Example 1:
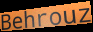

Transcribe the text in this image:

Behrouz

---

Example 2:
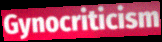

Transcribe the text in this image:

Gynocriticism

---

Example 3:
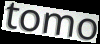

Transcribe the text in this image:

tomo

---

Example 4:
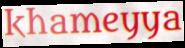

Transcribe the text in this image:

khameyya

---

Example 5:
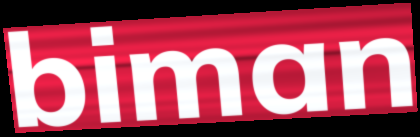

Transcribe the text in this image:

biman